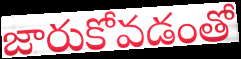
జారుకోవడంతో